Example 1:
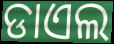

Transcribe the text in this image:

ଡାଏଲ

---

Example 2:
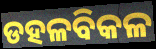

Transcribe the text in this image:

ଡହଳବିକଳ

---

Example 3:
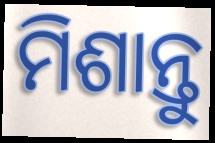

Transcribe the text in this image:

ମିଶାନ୍ତୁ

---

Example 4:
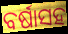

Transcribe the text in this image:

ବର୍ଷାସହ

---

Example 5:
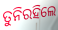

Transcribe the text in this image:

ତୁନିରହିଲେ